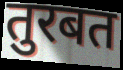
तुरबत